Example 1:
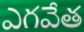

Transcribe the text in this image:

ఎగవేత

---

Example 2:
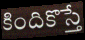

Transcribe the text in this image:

కిందికొస్తే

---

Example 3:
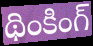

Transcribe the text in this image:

థింకింగ్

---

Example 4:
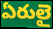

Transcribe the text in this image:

ఏరులై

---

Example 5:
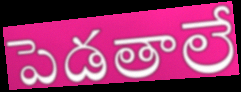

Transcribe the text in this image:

పెడతాలే